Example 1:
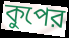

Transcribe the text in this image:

কুপের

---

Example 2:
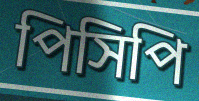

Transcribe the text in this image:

পিসিপি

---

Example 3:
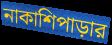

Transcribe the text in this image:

নাকাশিপাড়ার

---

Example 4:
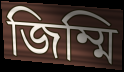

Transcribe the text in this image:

জিম্মি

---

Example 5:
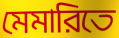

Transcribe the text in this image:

মেমারিতে